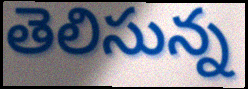
తెలిసున్న